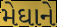
મેઘાને